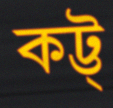
কট্ট্